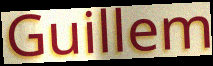
Guillem